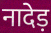
नादेड़